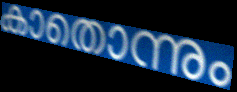
കാതൊന്നും